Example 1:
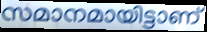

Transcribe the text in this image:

സമാനമായിട്ടാണ്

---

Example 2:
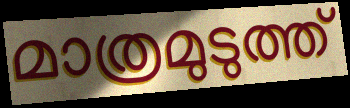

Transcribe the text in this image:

മാത്രമുടുത്ത്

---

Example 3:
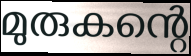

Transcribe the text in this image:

മുരുകന്റെ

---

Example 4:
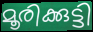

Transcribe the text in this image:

മൂരിക്കുട്ടി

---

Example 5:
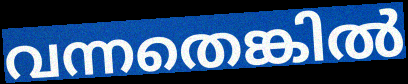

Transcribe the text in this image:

വന്നതെങ്കിൽ